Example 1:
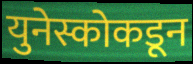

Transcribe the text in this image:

युनेस्कोकडून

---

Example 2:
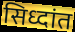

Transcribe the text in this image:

सिध्दांत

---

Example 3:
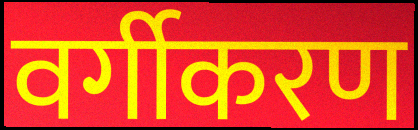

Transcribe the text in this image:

वर्गीकरण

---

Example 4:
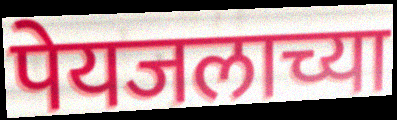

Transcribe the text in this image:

पेयजलाच्या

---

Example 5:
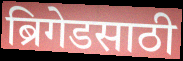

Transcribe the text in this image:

ब्रिगेडसाठी